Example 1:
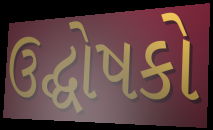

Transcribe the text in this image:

ઉદ્ઘોષકો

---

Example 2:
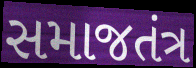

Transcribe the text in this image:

સમાજતંત્ર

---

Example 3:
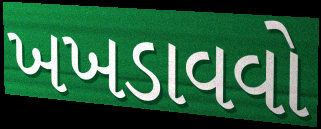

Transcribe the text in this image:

ખખડાવવો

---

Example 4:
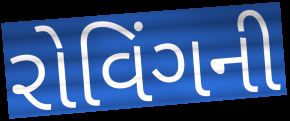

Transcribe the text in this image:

રોવિંગની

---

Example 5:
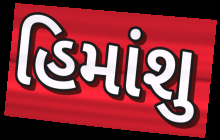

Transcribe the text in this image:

હિમાંશુ